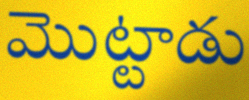
మొట్టాడు